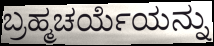
ಬ್ರಹ್ಮಚರ್ಯೆಯನ್ನು